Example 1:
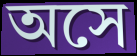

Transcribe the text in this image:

অসে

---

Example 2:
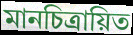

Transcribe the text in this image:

মানচিত্রায়িত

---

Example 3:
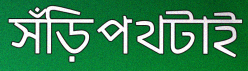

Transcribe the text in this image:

সঁড়িপথটাই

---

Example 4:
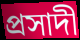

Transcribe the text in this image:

প্রসাদী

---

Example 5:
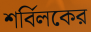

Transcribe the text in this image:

শর্বিলকের